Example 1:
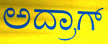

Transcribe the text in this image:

ಅದ್ರಾಗ್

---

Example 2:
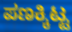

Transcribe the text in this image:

ಪಣಕ್ಕಿಟ್ಟ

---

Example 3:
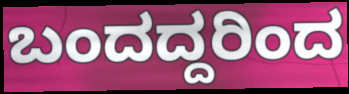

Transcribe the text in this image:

ಬಂದದ್ದರಿಂದ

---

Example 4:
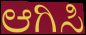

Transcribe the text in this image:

ಆಗಿಸಿ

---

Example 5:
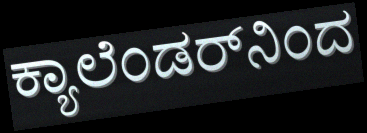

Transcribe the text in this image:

ಕ್ಯಾಲೆಂಡರ್‌ನಿಂದ